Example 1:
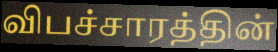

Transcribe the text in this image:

விபச்சாரத்தின்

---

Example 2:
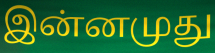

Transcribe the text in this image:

இன்னமுது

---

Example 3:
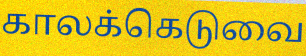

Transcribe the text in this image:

காலக்கெடுவை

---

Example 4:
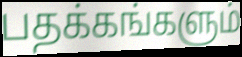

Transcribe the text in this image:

பதக்கங்களும்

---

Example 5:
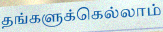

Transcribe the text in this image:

தங்களுக்கெல்லாம்